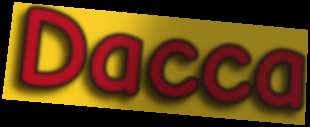
Dacca